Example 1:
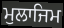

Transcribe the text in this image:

ਮੁਲਾਜਿਮ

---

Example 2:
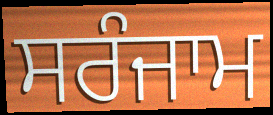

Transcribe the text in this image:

ਸਰੰਜਾਮ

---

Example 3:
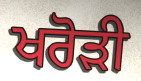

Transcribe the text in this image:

ਖਰੋੜੀ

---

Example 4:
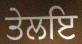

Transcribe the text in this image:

ਤੇਲਇ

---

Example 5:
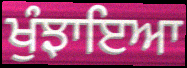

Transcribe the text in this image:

ਖੁੰਝਾਇਆ